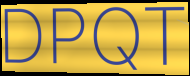
DPQT